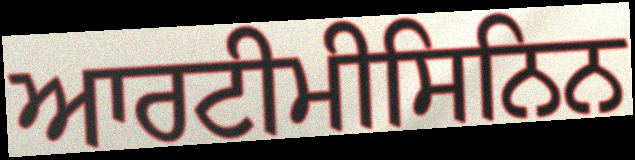
ਆਰਟੀਮੀਸਿਨਿਨ